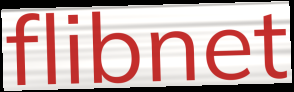
flibnet